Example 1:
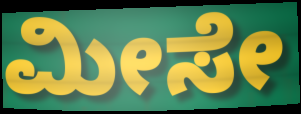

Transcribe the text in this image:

ಮೀಸೇ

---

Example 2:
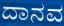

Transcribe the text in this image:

ದಾನವ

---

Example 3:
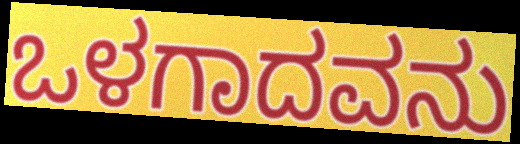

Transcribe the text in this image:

ಒಳಗಾದವನು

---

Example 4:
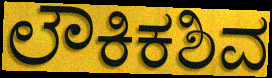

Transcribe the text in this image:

ಲೌಕಿಕಶಿವ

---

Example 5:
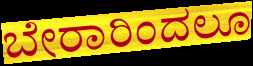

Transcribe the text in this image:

ಬೇರಾರಿಂದಲೂ